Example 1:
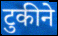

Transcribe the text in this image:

टुकीने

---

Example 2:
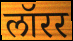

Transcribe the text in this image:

लॉरर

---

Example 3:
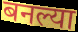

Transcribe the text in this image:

बनल्या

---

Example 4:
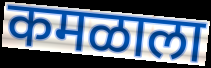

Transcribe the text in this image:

कमळाला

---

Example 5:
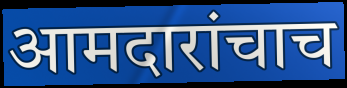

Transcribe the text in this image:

आमदारांचाच